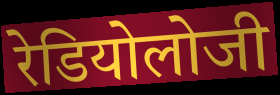
रेडियोलोजी